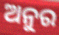
ଅନୁର